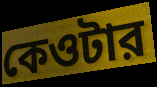
কেওটার